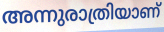
അന്നുരാത്രിയാണ്